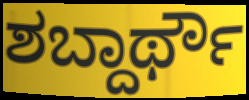
ಶಬ್ದಾರ್ಥೌ